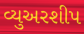
વ્યુઅરશીપ